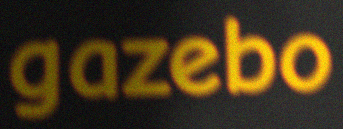
gazebo